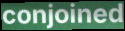
conjoined